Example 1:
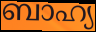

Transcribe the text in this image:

ബാഹ്യ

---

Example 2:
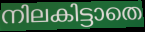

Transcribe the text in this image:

നിലകിട്ടാതെ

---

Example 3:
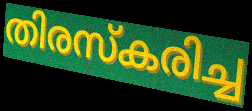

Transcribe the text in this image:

തിരസ്കരിച്ച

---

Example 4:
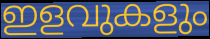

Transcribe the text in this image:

ഇളവുകളും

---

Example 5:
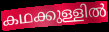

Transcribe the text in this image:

കഥക്കുള്ളിൽ